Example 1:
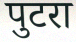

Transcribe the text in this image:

पुटरा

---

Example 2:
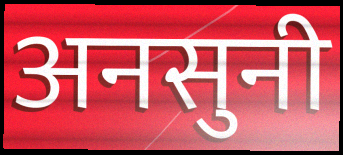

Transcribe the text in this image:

अनसुनी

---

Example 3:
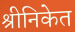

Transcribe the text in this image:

श्रीनिकेत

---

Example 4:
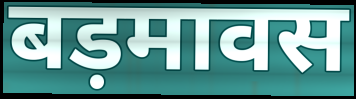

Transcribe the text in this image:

बड़मावस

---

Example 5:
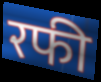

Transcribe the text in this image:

रफी